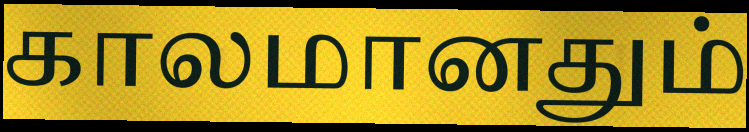
காலமானதும்